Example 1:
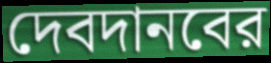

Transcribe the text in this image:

দেবদানবের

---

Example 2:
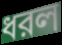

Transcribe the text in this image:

ধরল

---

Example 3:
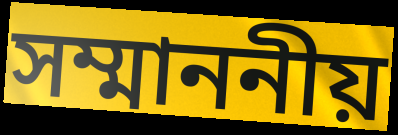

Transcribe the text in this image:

সম্মাননীয়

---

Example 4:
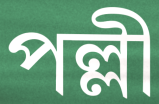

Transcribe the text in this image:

পল্লী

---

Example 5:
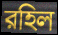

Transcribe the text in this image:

রহিল